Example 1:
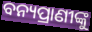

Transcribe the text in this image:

ବନ୍ୟପ୍ରାଣୀଙ୍କୁ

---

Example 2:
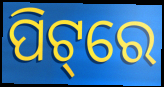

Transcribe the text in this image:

ପିଟ୍‌ରେ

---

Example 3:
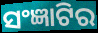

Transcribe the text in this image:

ସଂଜ୍ଞାଟିର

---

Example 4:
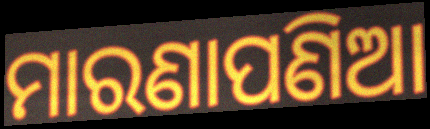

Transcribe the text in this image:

ମାରଣାପଣିଆ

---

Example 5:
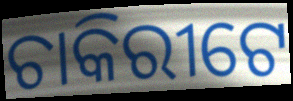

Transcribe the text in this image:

ଚାକିରୀଟେ